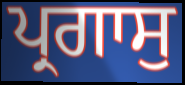
ਪ੍ਰਗਾਸੁ